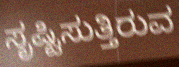
ಸೃಷ್ಟಿಸುತ್ತಿರುವ